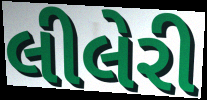
લીલેરી